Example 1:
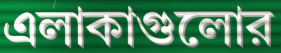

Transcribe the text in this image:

এলাকাগুলোর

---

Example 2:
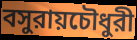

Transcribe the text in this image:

বসুরায়চৌধুরী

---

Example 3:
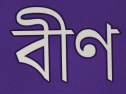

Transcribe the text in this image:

বীণ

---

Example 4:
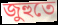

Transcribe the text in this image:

জুহুতে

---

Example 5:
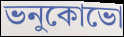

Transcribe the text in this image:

ভনুকোভো